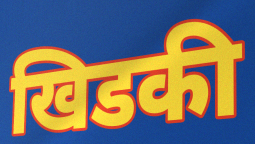
खिडकी